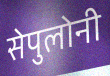
सेपुलोनी